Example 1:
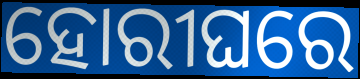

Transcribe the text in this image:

ହୋରୀଘରେ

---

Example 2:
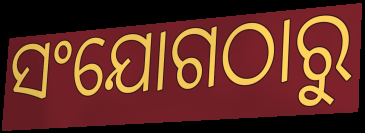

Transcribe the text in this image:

ସଂଯୋଗଠାରୁ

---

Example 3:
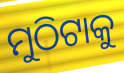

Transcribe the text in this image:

ମୁଠିଟାକୁ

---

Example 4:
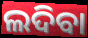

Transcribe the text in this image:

ଲଦିବା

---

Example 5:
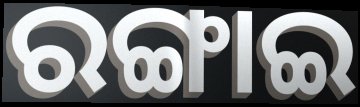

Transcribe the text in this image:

ରଙ୍ଗାଇ